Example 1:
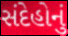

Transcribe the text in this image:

સંદેહોનું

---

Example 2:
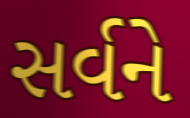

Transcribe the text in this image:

સર્વને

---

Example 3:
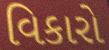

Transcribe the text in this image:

વિકારો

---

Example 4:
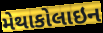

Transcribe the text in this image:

મેથાકોલાઇન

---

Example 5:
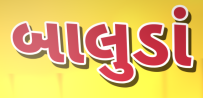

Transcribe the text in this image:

બાલુડાં